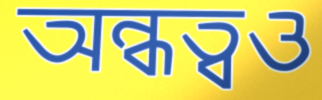
অন্ধত্বও